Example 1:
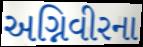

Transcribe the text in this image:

અગ્નિવીરના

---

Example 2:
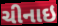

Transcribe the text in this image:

ચીનાઇ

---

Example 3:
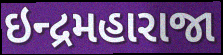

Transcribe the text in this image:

ઇન્દ્રમહારાજા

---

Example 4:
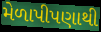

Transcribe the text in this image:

મેળાપીપણાથી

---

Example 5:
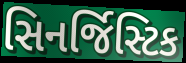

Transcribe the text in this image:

સિનર્જિસ્ટિક